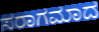
ಸರಾಗಮಾದ